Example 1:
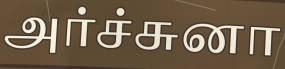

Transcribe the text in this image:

அர்ச்சுனா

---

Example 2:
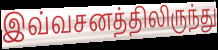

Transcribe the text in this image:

இவ்வசனத்திலிருந்து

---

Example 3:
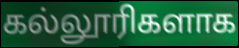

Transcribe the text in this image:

கல்லூரிகளாக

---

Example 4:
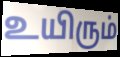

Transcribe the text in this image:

உயிரும்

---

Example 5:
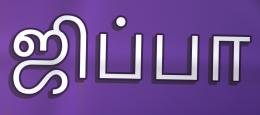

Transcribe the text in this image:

ஜிப்பா